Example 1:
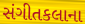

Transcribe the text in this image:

સંગીતકલાના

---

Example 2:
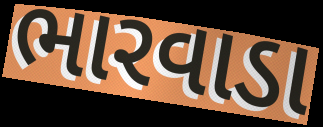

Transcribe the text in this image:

ભારવાડા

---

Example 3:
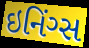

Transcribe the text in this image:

ઇનિંગ્સ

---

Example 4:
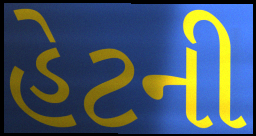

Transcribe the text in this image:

હેટની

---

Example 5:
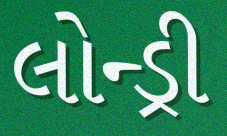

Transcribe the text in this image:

લોન્ડ્રી